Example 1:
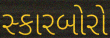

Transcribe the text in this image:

સ્કારબોરો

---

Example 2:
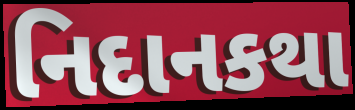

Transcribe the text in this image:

નિદાનકથા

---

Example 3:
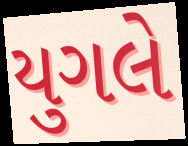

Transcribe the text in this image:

યુગલે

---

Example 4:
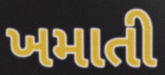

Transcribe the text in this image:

ખમાતી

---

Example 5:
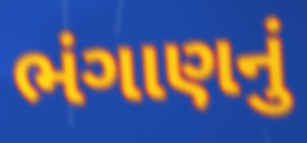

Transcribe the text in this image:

ભંગાણનું